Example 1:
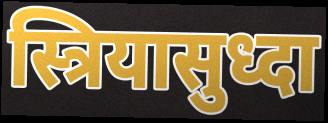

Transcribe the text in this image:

स्त्रियासुध्दा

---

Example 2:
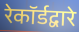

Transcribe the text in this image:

रेकॉर्डद्वारे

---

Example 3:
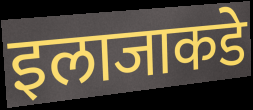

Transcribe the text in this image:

इलाजाकडे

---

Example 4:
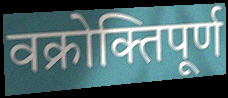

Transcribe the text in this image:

वक्रोक्तिपूर्ण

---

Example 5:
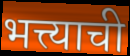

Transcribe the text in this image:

भत्त्याची